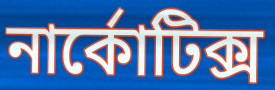
নার্কোটিক্স